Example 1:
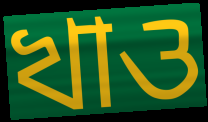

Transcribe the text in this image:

খাও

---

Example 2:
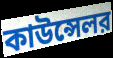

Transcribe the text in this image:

কাউন্সেলর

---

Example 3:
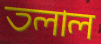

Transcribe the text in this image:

তলাল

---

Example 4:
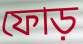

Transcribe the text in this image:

ফোড়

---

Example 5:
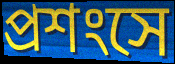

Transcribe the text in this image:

প্রশংসে